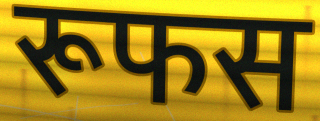
रूफस